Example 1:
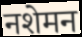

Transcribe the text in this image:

नशेमन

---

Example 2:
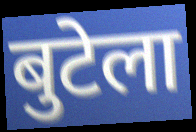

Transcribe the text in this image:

बुटेला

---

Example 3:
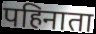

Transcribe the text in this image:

पहिनाता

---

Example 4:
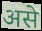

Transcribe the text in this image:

असे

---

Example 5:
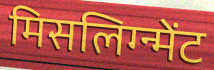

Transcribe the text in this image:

मिसलिग्न्मेंट